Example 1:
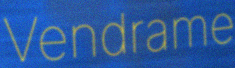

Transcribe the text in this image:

Vendrame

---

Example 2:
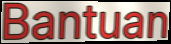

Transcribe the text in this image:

Bantuan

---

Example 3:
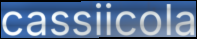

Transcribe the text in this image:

cassiicola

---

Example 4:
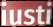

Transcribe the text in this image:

iusti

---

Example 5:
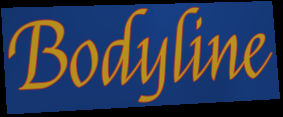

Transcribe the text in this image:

Bodyline